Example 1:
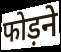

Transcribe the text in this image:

फोड़ने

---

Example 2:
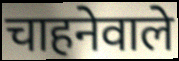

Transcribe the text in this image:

चाहनेवाले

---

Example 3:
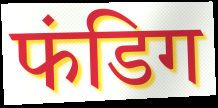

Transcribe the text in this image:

फंडिग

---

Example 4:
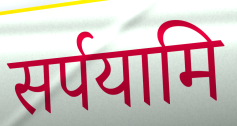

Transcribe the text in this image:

सर्पयामि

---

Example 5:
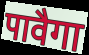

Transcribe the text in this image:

पावैगा